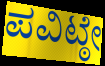
ಪವಿಟ್ಠೇ